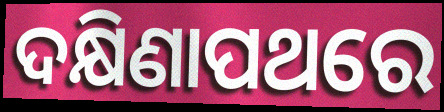
ଦକ୍ଷିଣାପଥରେ